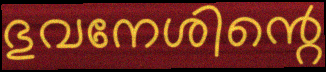
ഭുവനേശിന്റെ